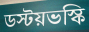
ডস্টয়ভস্কি